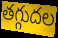
తగ్గుదల